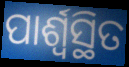
ପାର୍ଶ୍ୱସ୍ଥିତ